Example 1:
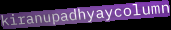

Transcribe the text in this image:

kiranupadhyaycolumn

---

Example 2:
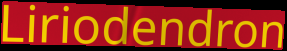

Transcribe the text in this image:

Liriodendron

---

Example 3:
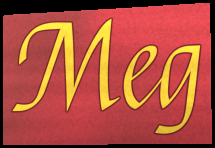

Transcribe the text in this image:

Meg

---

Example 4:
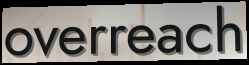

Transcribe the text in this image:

overreach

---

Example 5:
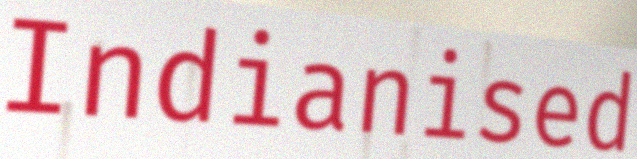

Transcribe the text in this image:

Indianised